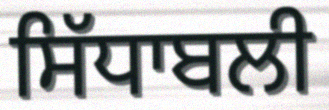
ਸਿੱਧਾਬਲੀ